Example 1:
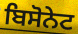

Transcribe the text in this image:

ਬਿਸੋਨੇਟ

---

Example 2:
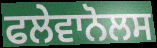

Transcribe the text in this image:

ਫਲੇਵਾਨੋਲਸ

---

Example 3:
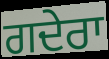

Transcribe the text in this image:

ਗਦੇਰਾ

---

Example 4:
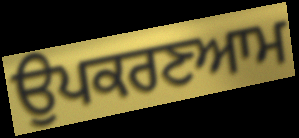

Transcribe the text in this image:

ਉਪਕਰਣਆਮ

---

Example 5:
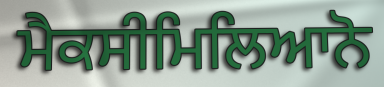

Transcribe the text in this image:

ਮੈਕਸੀਮਿਲਿਆਨੋ